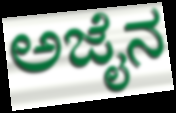
ಅಜೈನ